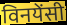
विनयेंसी